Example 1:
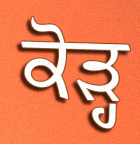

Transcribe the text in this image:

ਕੋੜ੍ਹ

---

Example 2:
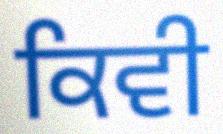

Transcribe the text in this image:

ਕਿਵੀ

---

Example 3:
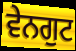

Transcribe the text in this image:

ਵੇਨਗੁਟ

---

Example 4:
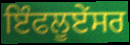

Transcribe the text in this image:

ਇੰਫਲੂਏਂਸਰ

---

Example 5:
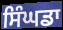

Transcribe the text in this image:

ਸਿੰਘਡਾ